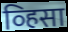
व्हिसा